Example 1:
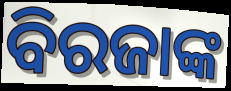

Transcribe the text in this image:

ବିରଜାଙ୍କ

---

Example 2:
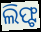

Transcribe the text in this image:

ଲିଫ୍ଟ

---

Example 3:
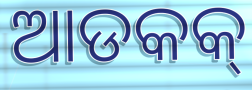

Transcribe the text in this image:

ଆଡକକ୍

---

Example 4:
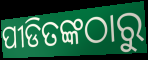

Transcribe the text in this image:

ପୀଡିତଙ୍କଠାରୁ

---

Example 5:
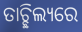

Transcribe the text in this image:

ତାଚ୍ଛିଲ୍ୟରେ